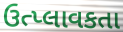
ઉત્પ્લાવકતા